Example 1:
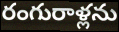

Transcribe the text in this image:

రంగురాళ్లను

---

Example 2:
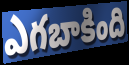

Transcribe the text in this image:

ఎగబాకింది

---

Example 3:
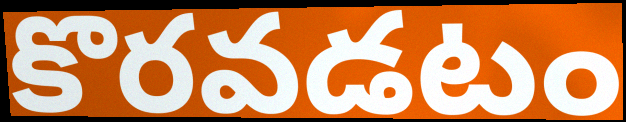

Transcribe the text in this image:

కొరవడటం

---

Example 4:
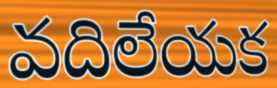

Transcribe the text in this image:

వదిలేయక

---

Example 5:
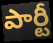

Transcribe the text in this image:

పార్టీ